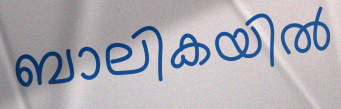
ബാലികയിൽ